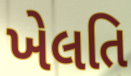
ખેલતિ